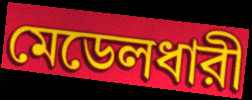
মেডেলধারী